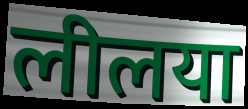
लीलया